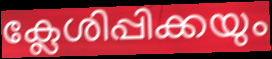
ക്ലേശിപ്പിക്കയും